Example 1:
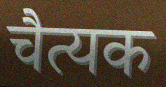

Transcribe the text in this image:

चैत्यक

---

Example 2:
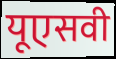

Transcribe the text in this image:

यूएसवी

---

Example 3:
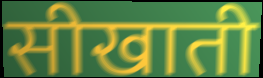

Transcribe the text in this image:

सीखाती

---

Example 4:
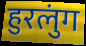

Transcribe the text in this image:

हुरलुंग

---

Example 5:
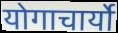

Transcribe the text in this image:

योगाचार्यो